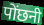
पोंछनी